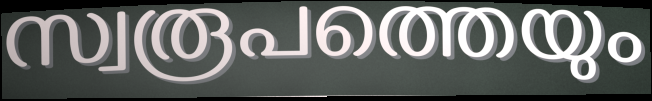
സ്വരൂപത്തെയും